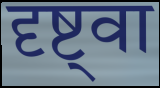
दृष्ट्‍वा